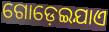
ଗୋଡ଼େଇଯାଏ